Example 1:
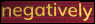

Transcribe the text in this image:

negatively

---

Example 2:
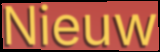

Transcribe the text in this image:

Nieuw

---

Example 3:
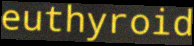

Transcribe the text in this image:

euthyroid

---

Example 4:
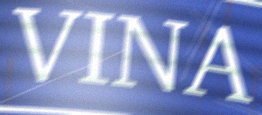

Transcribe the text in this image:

VINA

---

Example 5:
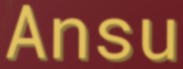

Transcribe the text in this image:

Ansu